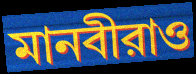
মানবীরাও